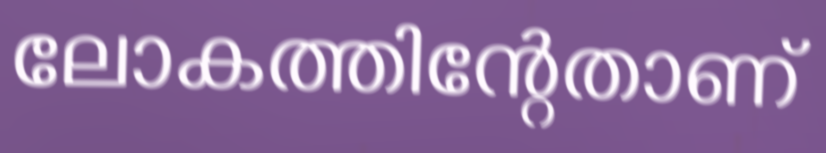
ലോകത്തിന്റേതാണ്